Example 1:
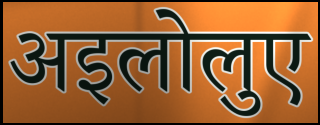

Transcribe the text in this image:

अइलोलुए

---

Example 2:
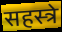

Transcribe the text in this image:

सहस्त्रे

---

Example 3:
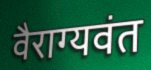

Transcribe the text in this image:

वैराग्यवंत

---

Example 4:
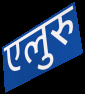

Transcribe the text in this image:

एलुरु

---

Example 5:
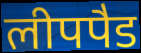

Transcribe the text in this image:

लीपपैड